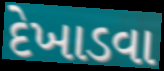
દેખાડવા